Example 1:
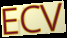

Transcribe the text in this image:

ECV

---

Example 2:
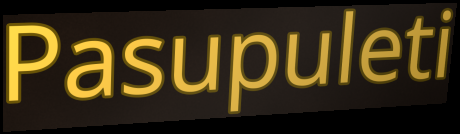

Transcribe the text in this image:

Pasupuleti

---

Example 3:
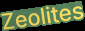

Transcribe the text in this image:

Zeolites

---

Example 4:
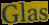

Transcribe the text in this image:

Glas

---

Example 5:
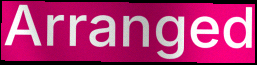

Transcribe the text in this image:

Arranged